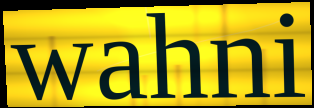
wahni